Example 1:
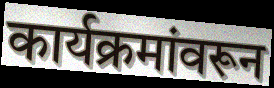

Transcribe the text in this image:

कार्यक्रमांवरून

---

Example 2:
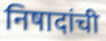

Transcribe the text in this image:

निषादांची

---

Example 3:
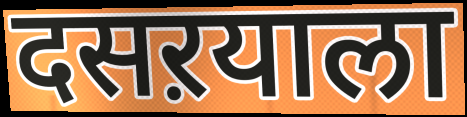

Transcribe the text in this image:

दसऱयाला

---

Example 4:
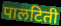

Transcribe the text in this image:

पालटिती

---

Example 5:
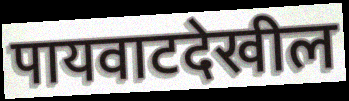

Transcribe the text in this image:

पायवाटदेखील